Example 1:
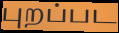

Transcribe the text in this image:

புறப்பட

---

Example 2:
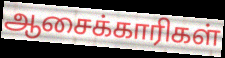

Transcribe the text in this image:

ஆசைக்காரிகள்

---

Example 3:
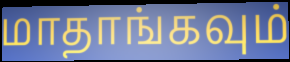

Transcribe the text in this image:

மாதாங்கவும்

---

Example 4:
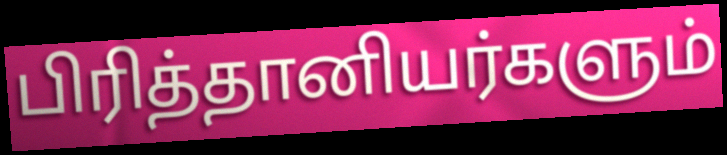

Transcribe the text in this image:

பிரித்தானியர்களும்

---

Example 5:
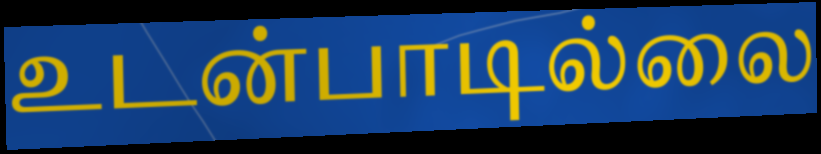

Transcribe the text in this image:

உடன்பாடில்லை